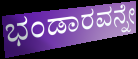
ಭಂಡಾರವನ್ನೇ